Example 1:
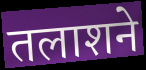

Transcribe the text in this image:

तलाशने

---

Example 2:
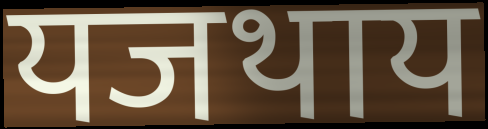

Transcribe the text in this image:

यजथाय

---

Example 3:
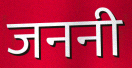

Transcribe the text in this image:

जननी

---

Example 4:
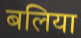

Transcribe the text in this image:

बलिया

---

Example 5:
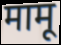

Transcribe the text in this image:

मामू